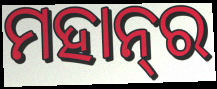
ମହାନ୍‌ର